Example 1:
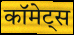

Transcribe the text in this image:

कॉमेट्स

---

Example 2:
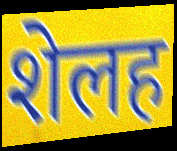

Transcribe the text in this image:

शेलह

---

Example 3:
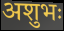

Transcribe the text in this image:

अशुभः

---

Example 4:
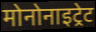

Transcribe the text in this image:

मोनोनाइट्रेट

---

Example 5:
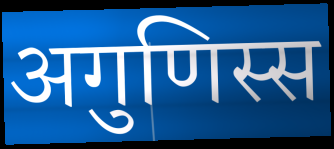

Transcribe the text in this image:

अगुणिस्स